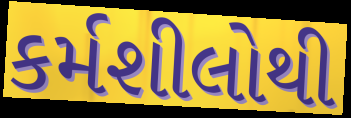
કર્મશીલોથી